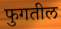
फुगतील